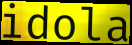
idola